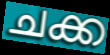
ചക്ക